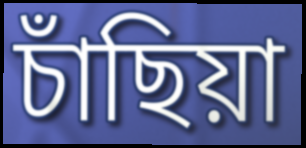
চাঁছিয়া